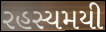
રહસ્યમયી